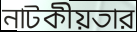
নাটকীয়তার